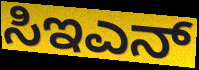
ಸಿಇಎನ್